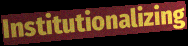
Institutionalizing